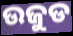
ଉଜୁଡ